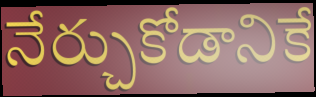
నేర్చుకోడానికే